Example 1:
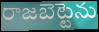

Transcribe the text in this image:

రాజబెట్టెను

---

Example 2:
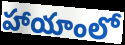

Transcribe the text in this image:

హాయాంలో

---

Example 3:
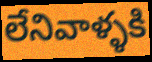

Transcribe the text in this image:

లేనివాళ్ళకి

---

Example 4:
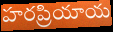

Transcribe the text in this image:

హరప్రియాయ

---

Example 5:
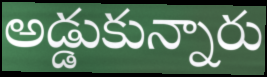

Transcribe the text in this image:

అడ్డుకున్నారు